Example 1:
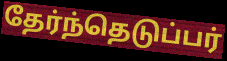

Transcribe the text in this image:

தேர்ந்தெடுப்பர்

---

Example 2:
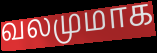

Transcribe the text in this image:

வலமுமாக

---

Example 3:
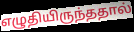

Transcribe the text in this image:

எழுதியிருந்ததால்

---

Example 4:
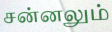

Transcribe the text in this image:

சன்னலும்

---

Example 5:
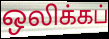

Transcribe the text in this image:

ஒலிக்கப்